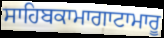
ਸਾਹਿਬਕਾਮਾਗਾਟਾਮਾਰੂ